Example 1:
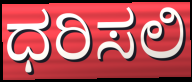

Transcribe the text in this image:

ಧರಿಸಲಿ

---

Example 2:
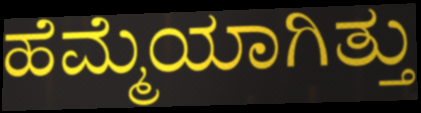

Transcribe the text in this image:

ಹೆಮ್ಮೆಯಾಗಿತ್ತು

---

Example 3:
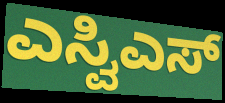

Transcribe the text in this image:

ಎಸ್ವಿಎಸ್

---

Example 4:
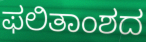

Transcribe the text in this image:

ಫಲಿತಾಂಶದ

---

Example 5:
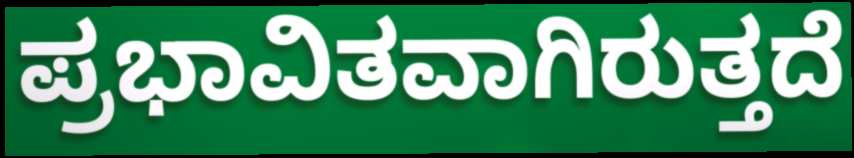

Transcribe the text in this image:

ಪ್ರಭಾವಿತವಾಗಿರುತ್ತದೆ